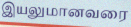
இயலுமானவரை